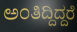
ಅಂತಿದ್ದಿದ್ದರೆ